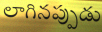
లాగినప్పుడు